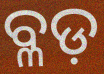
ବ୍ଳଡ଼